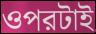
ওপরটাই